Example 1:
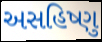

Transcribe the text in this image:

અસહિષ્ણુ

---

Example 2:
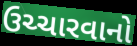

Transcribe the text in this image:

ઉચ્ચારવાનો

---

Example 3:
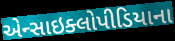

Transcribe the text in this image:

એન્સાઇક્લોપીડિયાના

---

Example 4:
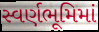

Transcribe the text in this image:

સ્વર્ણભૂમિમાં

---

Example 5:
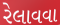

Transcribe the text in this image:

રેલાવવા